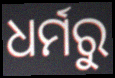
ଧର୍ମରୁ